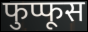
फुप्फूस